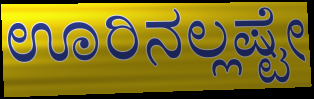
ಊರಿನಲ್ಲಷ್ಟೇ